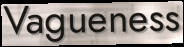
Vagueness